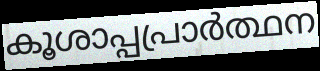
കൂശാപ്പപ്രാർത്ഥന